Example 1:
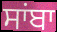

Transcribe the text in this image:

ਸਾਂਬਾ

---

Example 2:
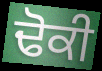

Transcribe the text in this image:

ਢੋਕੀ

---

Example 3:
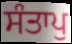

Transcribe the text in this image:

ਸੰਤਾਪੁ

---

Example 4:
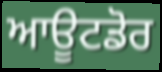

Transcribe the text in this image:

ਆਊਟਡੋਰ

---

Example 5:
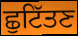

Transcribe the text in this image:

ਛੁਟਿੱਤਣ